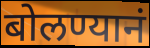
बोलण्यानं